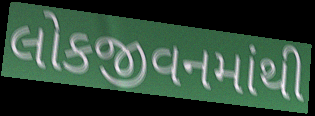
લોકજીવનમાંથી